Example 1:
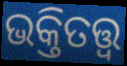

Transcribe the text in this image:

ଭକ୍ତିତତ୍ତ୍ୱ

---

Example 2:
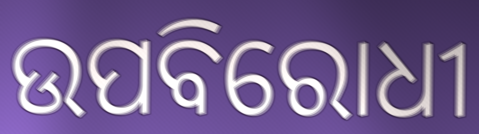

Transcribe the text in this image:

ଉପବିରୋଧୀ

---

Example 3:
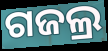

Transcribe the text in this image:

ଗଜଲ୍ର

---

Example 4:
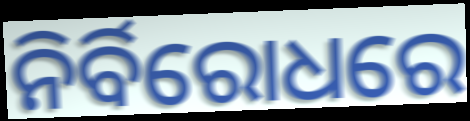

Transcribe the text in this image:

ନିର୍ବିରୋଧରେ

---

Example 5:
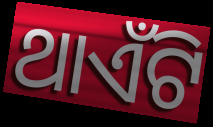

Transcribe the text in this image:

ଥାଏଁଟି